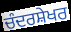
ਚੰਦਰਸ਼ੇਖਰ